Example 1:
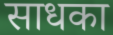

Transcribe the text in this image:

साधका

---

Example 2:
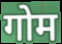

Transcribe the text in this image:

गोम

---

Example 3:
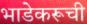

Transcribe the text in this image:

भाडेकरूची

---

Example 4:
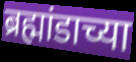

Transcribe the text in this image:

ब्रह्मांडाच्या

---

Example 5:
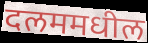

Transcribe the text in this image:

दलममधील